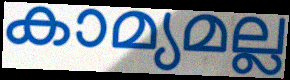
കാമ്യമല്ല